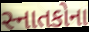
સ્નાતકોના